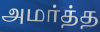
அமர்த்த